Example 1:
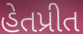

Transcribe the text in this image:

હેતપ્રીત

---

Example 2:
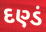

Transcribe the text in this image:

દણ્ડં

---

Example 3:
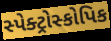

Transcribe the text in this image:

સ્પેક્ટ્રોસ્કોપિક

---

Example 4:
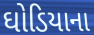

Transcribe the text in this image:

ઘોડિયાના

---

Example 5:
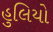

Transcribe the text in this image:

હુલિયો